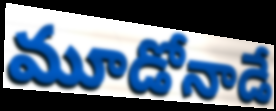
మూడోనాడే